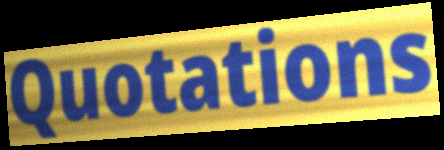
Quotations